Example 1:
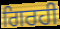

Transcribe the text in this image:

ਗਿਰਹੀ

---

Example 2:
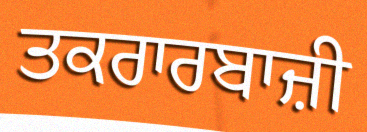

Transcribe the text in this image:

ਤਕਰਾਰਬਾਜ਼ੀ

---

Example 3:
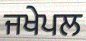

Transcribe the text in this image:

ਜਖੇਪਲ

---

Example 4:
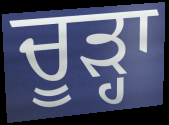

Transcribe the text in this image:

ਚੂੜ੍ਹਾ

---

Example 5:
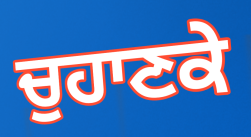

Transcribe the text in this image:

ਚੁਹਾਣਕੇ